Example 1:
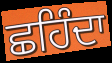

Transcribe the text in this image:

ਛਹਿੰਦਾ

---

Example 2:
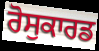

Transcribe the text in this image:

ਰੋਸੁਕਾਰਡ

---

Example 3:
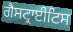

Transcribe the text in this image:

ਗੈਸਟ੍ਰਾਈਟਿਸ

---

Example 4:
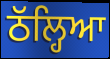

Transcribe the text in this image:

ਠੱਲ੍ਹਿਆ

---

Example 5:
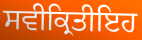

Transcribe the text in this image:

ਸਵੀਕ੍ਰਿਤੀਇਹ